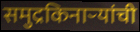
समुद्रकिनाऱ्यांची